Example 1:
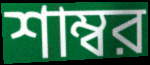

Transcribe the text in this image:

শাম্বর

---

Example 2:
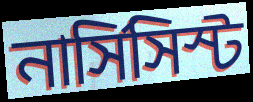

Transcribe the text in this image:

নার্সিসিস্ট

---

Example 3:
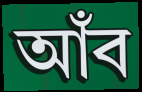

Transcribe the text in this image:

আঁব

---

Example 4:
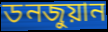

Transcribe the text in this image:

ডনজুয়ান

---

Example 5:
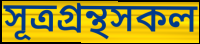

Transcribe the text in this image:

সূত্রগ্রন্থসকল